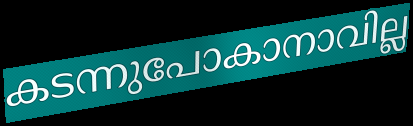
കടന്നുപോകാനാവില്ല